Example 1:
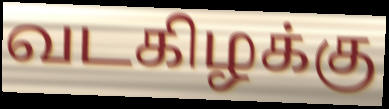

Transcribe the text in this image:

வடகிழக்கு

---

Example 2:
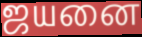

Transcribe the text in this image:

ஜயனை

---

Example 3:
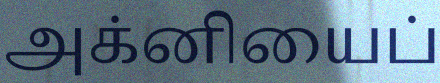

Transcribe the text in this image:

அக்னியைப்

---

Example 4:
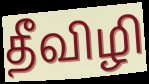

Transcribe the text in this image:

தீவிழி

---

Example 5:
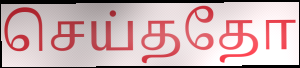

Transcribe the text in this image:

செய்ததோ